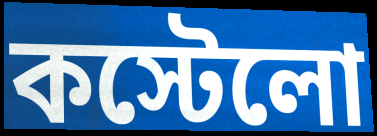
কস্টেলো